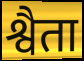
श्वैता